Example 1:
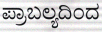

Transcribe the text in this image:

ಪ್ರಾಬಲ್ಯದಿಂದ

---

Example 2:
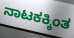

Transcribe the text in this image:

ನಾಟಕಕ್ಕಿಂತ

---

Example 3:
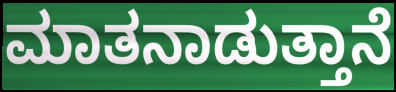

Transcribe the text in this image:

ಮಾತನಾಡುತ್ತಾನೆ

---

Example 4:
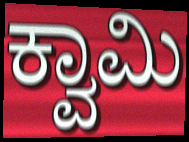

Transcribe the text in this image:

ಕ್ವಾಮಿ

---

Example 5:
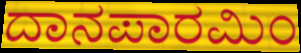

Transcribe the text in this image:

ದಾನಪಾರಮಿಂ